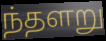
ந்தளறு